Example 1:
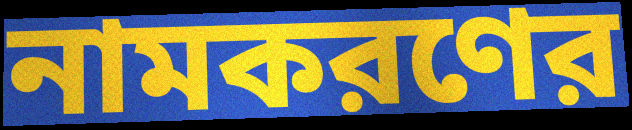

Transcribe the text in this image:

নামকরণের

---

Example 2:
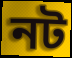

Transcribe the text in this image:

নট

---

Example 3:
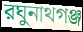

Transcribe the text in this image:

রঘুনাথগঞ্জ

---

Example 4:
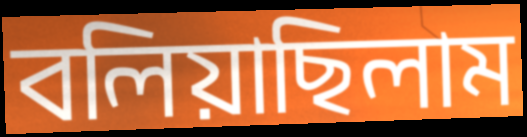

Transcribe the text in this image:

বলিয়াছিলাম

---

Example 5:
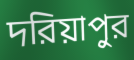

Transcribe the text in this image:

দরিয়াপুর